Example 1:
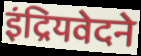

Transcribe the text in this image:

इंद्रियवेदने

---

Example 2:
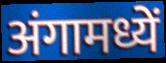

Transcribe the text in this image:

अंगामध्यें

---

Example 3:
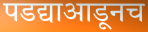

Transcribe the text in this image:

पडद्याआडूनच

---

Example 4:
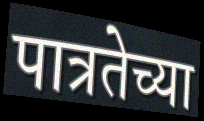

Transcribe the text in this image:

पात्रतेच्या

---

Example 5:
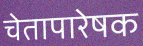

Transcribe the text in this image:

चेतापारेषक